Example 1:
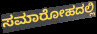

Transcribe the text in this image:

ಸಮಾರೋಹದಲ್ಲಿ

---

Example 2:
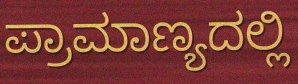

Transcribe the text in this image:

ಪ್ರಾಮಾಣ್ಯದಲ್ಲಿ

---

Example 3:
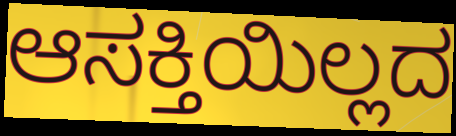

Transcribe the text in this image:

ಆಸಕ್ತಿಯಿಲ್ಲದ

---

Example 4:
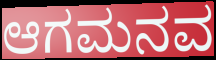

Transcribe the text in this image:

ಆಗಮನವ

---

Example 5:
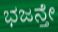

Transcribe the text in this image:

ಭಜನ್ತೇ